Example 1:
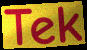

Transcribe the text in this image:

Tek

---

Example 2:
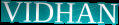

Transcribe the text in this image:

VIDHAN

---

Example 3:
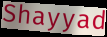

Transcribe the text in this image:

Shayyad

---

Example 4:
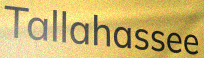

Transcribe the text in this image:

Tallahassee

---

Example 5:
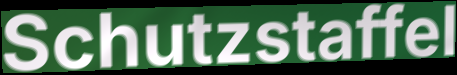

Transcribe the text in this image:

Schutzstaffel